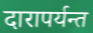
दारापर्यन्त